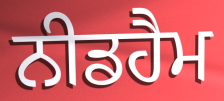
ਨੀਡਹੈਮ